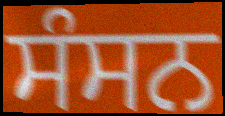
ਸੰਸਨ